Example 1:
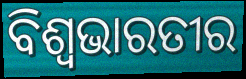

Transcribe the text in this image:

ବିଶ୍ୱଭାରତୀର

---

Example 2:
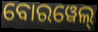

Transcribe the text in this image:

ବୋରୱେଲ୍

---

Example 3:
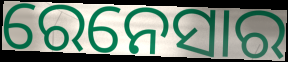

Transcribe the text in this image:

ରେନେସାର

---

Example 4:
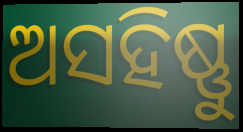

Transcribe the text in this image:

ଅସହିଷ୍ଣୁ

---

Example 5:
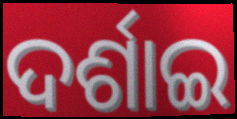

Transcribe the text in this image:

ଦର୍ଶାଇ